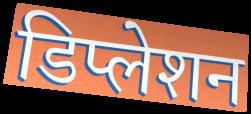
डिप्लेशन